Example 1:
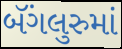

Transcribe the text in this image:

બૅંગલુરુમાં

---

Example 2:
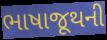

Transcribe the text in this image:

ભાષાજૂથની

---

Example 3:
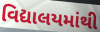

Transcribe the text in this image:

વિદ્યાલયમાંથી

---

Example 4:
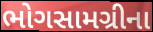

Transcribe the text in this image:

ભોગસામગ્રીના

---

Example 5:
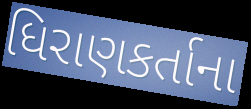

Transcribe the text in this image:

ધિરાણકર્તાના